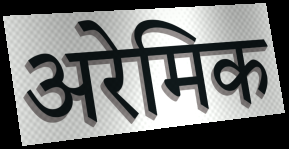
अरेमिक